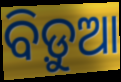
ବିଡ଼ୁଆ